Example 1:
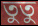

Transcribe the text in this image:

তুতু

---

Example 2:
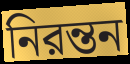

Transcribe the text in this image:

নিরন্তন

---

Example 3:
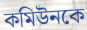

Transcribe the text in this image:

কমিউনকে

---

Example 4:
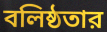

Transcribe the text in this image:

বলিষ্ঠতার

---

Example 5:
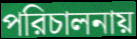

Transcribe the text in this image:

পরিচালনায়